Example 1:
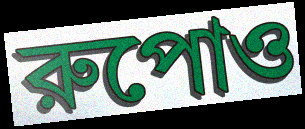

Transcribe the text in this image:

রুপোও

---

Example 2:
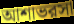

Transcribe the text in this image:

আশাভরসা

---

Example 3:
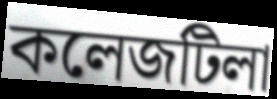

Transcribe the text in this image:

কলেজটিলা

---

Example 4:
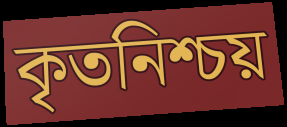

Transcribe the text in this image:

কৃতনিশ্চয়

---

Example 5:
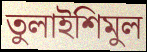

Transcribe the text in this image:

তুলাইশিমুল